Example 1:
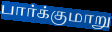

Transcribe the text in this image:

பார்க்குமாறு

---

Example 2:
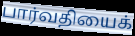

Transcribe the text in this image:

பார்வதியைக்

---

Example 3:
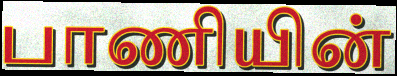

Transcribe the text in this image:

பாணியின்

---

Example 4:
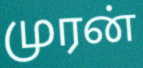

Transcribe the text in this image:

முரன்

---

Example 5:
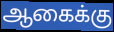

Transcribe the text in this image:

ஆகைக்கு